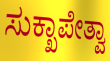
ಸುಕ್ಖಾಪೇತ್ವಾ